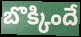
బొక్కిందే